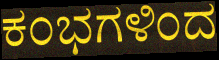
ಕಂಭಗಳಿಂದ